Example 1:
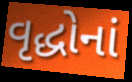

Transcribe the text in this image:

વૃદ્ધોનાં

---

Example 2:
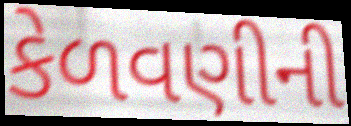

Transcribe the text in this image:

કેળવણીની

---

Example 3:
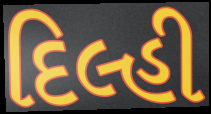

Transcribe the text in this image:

દિલ્હી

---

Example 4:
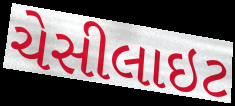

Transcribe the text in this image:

ચેસીલાઇટ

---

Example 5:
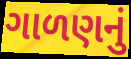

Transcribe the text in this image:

ગાળણનું